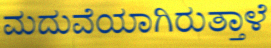
ಮದುವೆಯಾಗಿರುತ್ತಾಳೆ